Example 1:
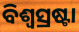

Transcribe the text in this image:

ବିଶ୍ୱସ୍ରଷ୍ଟା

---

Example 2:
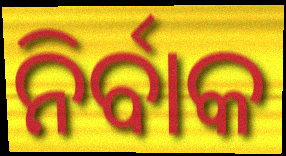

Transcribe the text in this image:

ନିର୍ବାକ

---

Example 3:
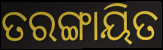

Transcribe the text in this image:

ତରଙ୍ଗାୟିତ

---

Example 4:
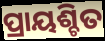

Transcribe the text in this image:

ପ୍ରାୟଶ୍ଚିତ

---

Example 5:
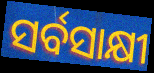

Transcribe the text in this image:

ସର୍ବସାକ୍ଷୀ